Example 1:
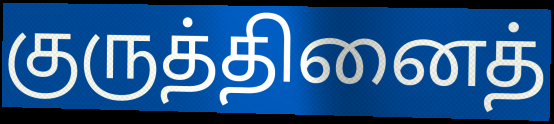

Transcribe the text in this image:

குருத்தினைத்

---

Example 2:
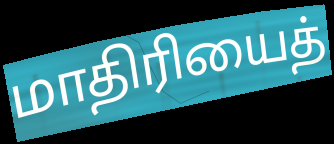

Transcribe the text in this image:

மாதிரியைத்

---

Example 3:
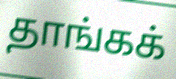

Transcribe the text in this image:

தாங்கக்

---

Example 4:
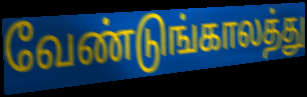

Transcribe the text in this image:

வேண்டுங்காலத்து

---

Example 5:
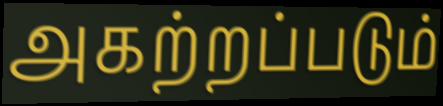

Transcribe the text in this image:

அகற்றப்படும்